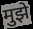
मुझे